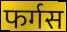
फर्गस